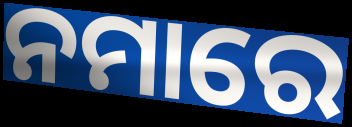
ନମାରେ